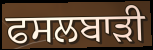
ਫਸਲਬਾੜੀ